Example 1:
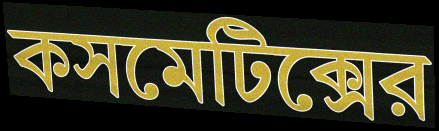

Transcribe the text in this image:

কসমেটিক্সের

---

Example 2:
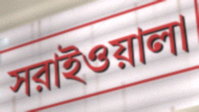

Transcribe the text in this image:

সরাইওয়ালা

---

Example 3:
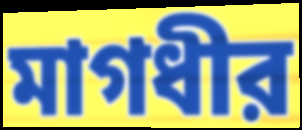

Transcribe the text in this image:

মাগধীর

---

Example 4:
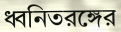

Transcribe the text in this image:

ধ্বনিতরঙ্গের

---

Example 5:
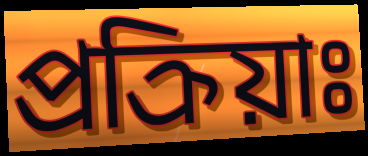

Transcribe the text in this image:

প্রক্রিয়াঃ